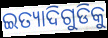
ଇତ୍ୟାଦିଗୁଡିକୁ